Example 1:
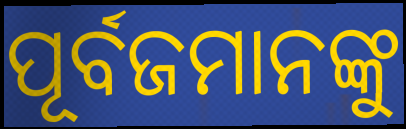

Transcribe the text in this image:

ପୂର୍ବଜମାନଙ୍କୁ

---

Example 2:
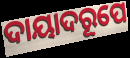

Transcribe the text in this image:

ଦାୟାଦରୂପେ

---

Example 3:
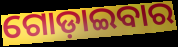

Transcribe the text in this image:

ଗୋଡ଼ାଇବାର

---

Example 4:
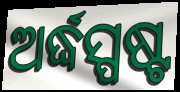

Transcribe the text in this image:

ଅର୍ଦ୍ଧସ୍ପଷ୍ଟ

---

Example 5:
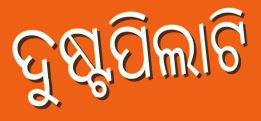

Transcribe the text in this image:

ଦୁଷ୍ଟପିଲାଟି